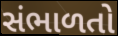
સંભાળતો